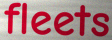
fleets